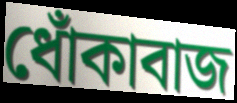
ধোঁকাবাজ